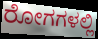
ರೋಗಗಳಲ್ಲಿ